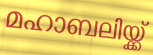
മഹാബലിയ്ക്ക്